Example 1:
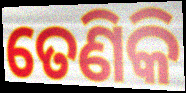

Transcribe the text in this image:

ତେଣିକି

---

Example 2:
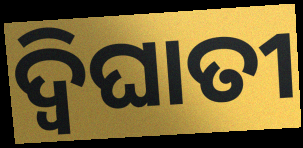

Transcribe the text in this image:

ଦ୍ବିଘାତୀ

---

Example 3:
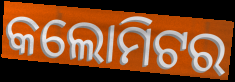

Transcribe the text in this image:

କଲୋମିଟର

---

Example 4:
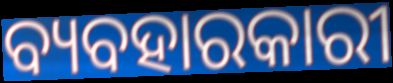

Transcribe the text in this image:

ବ୍ୟବହାରକାରୀ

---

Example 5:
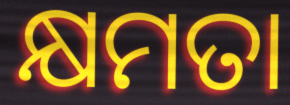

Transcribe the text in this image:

କ୍ଷମତା